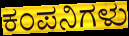
ಕಂಪನಿಗಳು